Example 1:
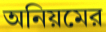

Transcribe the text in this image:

অনিয়মের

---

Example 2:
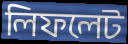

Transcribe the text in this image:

লিফলেট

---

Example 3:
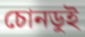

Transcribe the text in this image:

চোনডুই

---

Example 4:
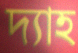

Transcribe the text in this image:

দ্যাহ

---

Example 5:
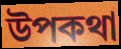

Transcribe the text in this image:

উপকথা